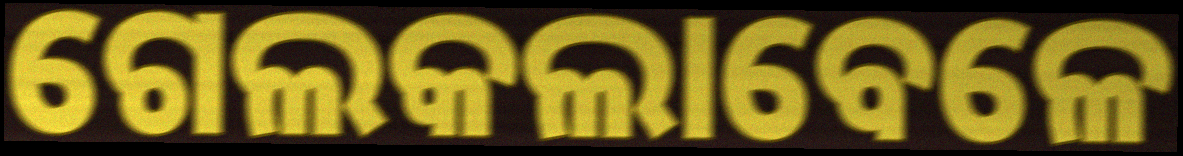
ଗେଲକଲାବେଳେ